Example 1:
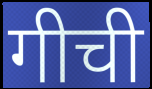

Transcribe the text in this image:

गीची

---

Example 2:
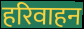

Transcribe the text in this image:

हरिवाहन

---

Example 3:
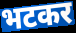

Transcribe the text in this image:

भटकर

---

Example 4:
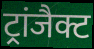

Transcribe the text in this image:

ट्रांजैक्ट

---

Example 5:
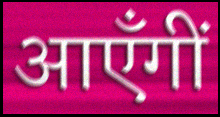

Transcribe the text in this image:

आएँगीं